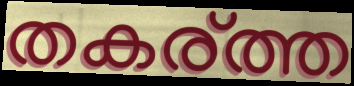
തകര്ത്ത